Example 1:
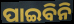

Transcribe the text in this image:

ପାଇବିନି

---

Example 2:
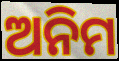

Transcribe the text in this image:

ଅନିମ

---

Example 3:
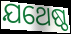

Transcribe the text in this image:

ଯଥେଷ୍ଠ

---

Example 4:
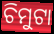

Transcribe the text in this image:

ଚିମୁଟା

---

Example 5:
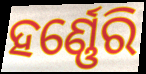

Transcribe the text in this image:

ହର୍ଣ୍ଣେରି